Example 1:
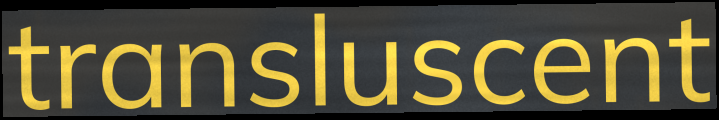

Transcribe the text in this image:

transluscent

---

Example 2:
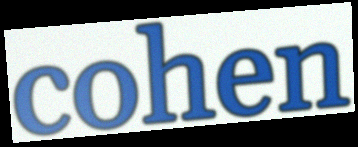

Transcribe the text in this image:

cohen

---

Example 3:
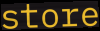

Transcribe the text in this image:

store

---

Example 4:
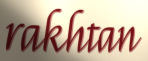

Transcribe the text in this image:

rakhtan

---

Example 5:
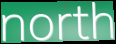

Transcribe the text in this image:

north